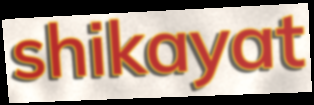
shikayat